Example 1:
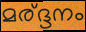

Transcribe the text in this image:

മര്ദ്ദനം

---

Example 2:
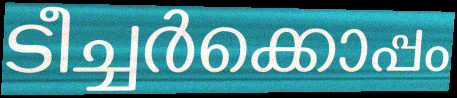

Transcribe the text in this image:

ടീച്ചർക്കൊപ്പം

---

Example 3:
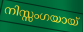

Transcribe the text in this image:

നിസ്സംഗയായ്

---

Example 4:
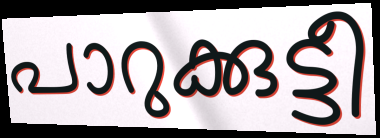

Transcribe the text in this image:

പാറുക്കുട്ടീ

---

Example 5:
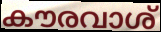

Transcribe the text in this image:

കൗരവാശ്